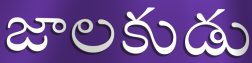
జాలకుడు